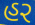
હર